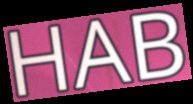
HAB